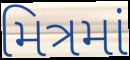
મિત્રમાં